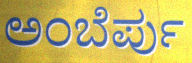
ಅಂಬೆರ್ಪು